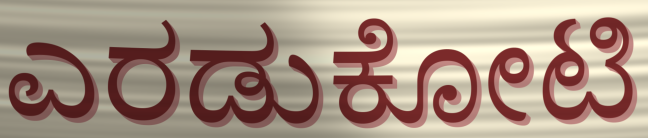
ಎರಡುಕೋಟಿ